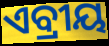
ଏବ୍ରୀୟ